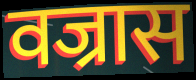
वज्रास